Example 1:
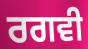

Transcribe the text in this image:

ਰਗਵੀ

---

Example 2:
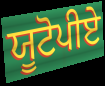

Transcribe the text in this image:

ਯੂਟੋਪੀਏ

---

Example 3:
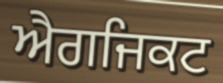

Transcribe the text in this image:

ਐਗਜਿਕਟ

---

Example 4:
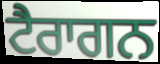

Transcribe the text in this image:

ਟੈਰਾਗਨ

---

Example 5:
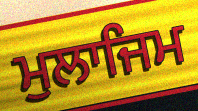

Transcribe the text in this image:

ਮੁਲਾਜਿਮ